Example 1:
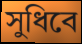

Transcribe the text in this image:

সুধিবে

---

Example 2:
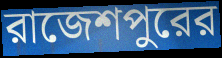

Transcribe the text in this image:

রাজেশপুরের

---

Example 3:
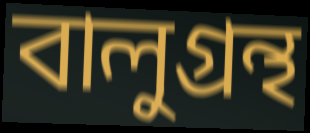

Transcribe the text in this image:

বালুগ্রন্থ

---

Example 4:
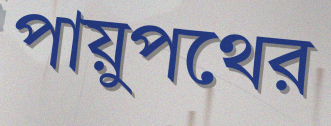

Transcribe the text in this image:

পায়ুপথের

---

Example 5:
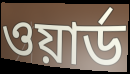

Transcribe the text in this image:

ওয়ার্ড